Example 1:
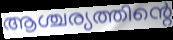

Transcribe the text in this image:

ആശ്ചര്യത്തിന്റെ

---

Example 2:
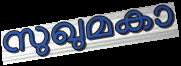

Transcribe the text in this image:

സുഖുമകാ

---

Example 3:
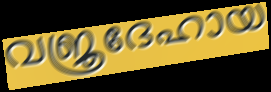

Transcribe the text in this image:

വജ്രദേഹായ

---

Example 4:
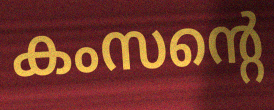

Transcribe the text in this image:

കംസന്റെ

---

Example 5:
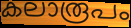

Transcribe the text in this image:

കലാരൂപം